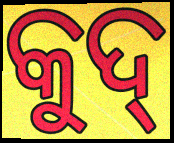
କୁଦ୍